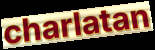
charlatan